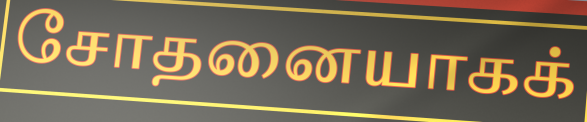
சோதனையாகக்